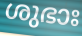
ശുഭാഃ